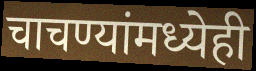
चाचण्यांमध्येही